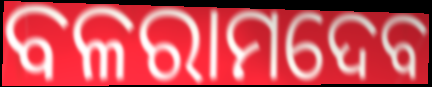
ବଳରାମଦେବ